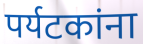
पर्यटकांना